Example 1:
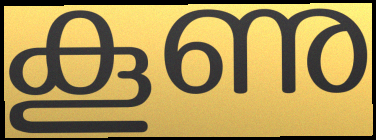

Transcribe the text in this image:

കൂണു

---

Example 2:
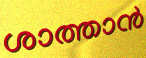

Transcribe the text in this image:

ശാത്താൻ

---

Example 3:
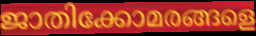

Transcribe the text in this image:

ജാതിക്കോമരങ്ങളെ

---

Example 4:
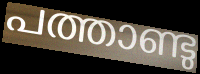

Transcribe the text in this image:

പത്താണ്ടു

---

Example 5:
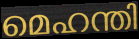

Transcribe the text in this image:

മെഹന്തി